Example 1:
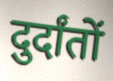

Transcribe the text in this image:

दुर्दांतों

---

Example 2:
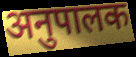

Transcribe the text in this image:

अनुपालक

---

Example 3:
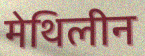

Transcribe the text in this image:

मेथिलीन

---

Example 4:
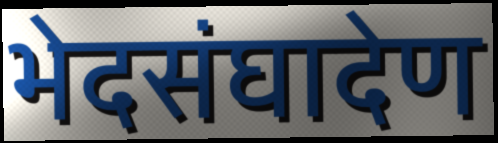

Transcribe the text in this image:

भेदसंघादेण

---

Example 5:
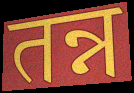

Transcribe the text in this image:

तन्न